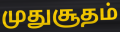
முதுசூதம்